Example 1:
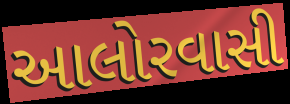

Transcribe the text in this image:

આલોરવાસી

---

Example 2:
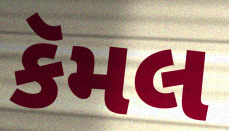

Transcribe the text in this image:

કૅમલ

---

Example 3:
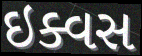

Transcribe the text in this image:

ઇક્વસ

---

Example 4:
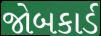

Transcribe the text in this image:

જોબકાર્ડ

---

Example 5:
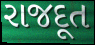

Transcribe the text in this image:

રાજદૂત